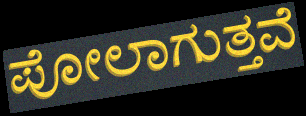
ಪೋಲಾಗುತ್ತವೆ